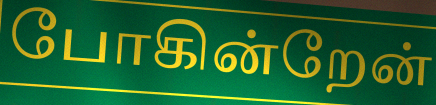
போகின்றேன்